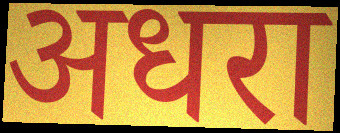
अधरा